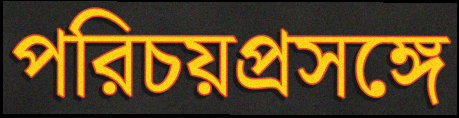
পরিচয়প্রসঙ্গে